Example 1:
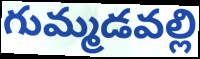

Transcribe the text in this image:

గుమ్మడవల్లి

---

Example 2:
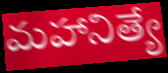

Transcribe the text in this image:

మహానిత్యే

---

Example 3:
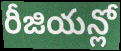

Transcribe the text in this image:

రీజియన్లో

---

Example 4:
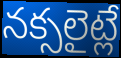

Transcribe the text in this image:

నక్సలైట్లే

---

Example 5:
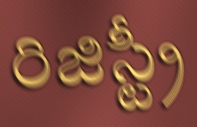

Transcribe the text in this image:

రిజిస్ట్రీ